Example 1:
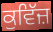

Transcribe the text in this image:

ਕੁਵਿੱਜ਼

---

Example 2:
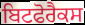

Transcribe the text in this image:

ਬਿਟਫੋਰੈਕਸ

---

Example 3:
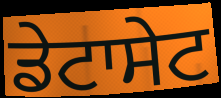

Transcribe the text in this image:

ਡੇਟਾਸੇਟ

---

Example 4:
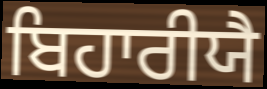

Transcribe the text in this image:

ਬਿਹਾਰੀਯੈ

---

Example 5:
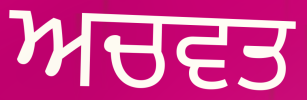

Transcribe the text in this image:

ਅਚਵਤ